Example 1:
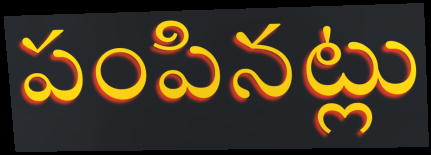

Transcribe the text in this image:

పంపినట్లు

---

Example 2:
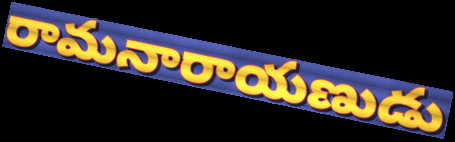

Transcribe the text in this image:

రామనారాయణుడు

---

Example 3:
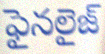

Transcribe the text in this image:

ఫైనలైజ్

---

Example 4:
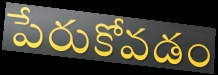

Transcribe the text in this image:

పేరుకోవడం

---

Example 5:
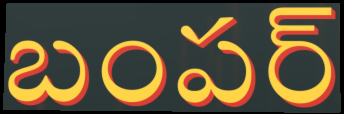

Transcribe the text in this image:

బంపర్